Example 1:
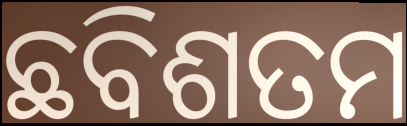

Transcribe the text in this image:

ଛବିଶତମ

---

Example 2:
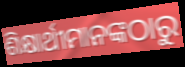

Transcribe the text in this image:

ଶିକ୍ଷାର୍ଥୀମାନଙ୍କଠାରୁ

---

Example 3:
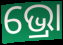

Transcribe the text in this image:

ଭ୍ରୋ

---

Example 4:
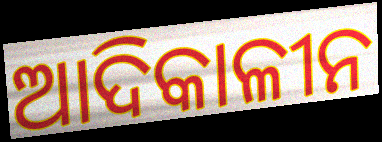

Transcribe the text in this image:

ଆଦିକାଳୀନ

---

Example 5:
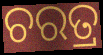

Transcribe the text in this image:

ଚରତ୍ର